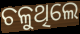
ଚଳୁଥିଲେ